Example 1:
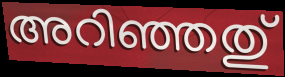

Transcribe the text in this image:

അറിഞ്ഞതു്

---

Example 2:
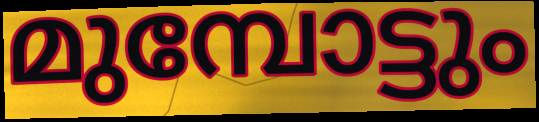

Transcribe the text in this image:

മുമ്പോട്ടും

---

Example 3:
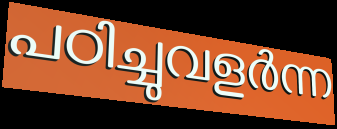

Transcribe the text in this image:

പഠിച്ചുവളർന്ന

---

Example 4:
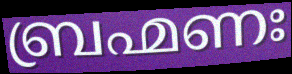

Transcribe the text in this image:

ബ്രഹ്മണഃ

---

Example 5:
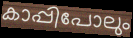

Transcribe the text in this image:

കാപ്പിപോലും